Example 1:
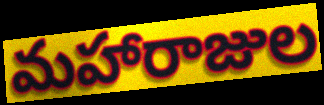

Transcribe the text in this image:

మహారాజుల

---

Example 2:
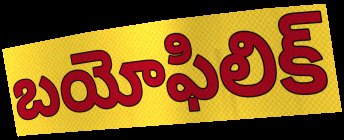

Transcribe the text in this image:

బయోఫిలిక్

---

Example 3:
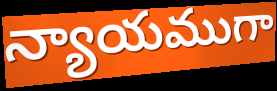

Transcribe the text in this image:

న్యాయముగా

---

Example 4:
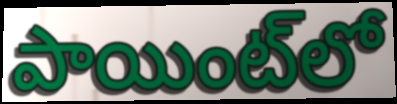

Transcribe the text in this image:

పాయింట్‌లో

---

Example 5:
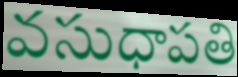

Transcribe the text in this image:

వసుధాపతి